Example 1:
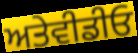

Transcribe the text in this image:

ਅਤੇਵੀਡੀਓ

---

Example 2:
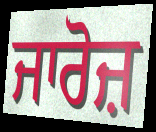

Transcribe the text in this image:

ਜਾਰੋਜ਼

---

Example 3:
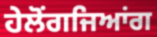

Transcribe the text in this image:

ਹੇਲੋਂਗਜਿਆਂਗ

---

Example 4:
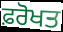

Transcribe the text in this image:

ਫ਼ਰੋਖਤ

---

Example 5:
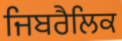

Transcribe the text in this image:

ਜਿਬਰੈਲਿਕ